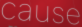
cause